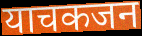
याचकजन